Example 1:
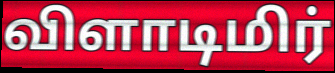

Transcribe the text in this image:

விளாடிமிர்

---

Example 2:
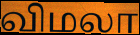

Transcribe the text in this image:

விமலா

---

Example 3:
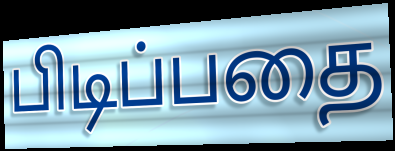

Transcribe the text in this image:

பிடிப்பதை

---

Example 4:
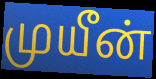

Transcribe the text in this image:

முயீன்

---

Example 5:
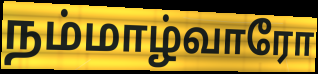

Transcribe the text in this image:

நம்மாழ்வாரோ